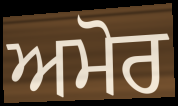
ਅਮੋਰ